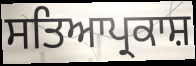
ਸਤਿਆਪ੍ਰਕਾਸ਼